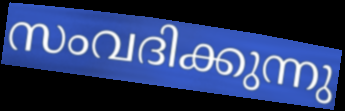
സംവദിക്കുന്നു